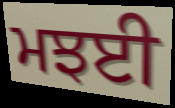
ਮਝਈ